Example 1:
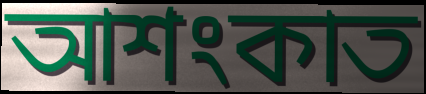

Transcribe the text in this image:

আশংকাত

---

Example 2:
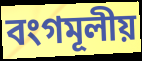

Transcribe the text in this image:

বংগমূলীয়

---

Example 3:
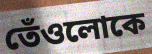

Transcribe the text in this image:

তেঁওলোকে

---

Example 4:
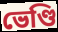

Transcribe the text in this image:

ভেণ্ডি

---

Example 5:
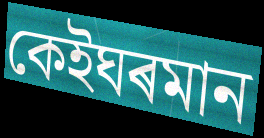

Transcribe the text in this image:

কেইঘৰমান